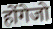
होंगेजो